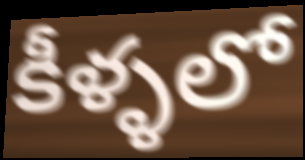
కీళ్ళలో